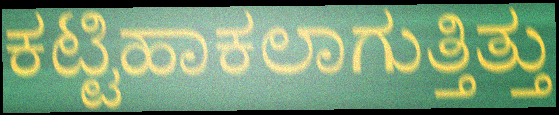
ಕಟ್ಟಿಹಾಕಲಾಗುತ್ತಿತ್ತು